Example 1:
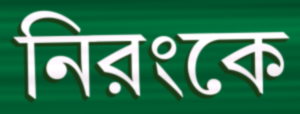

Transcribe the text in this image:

নিরংকে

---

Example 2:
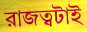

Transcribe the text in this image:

রাজত্বটাই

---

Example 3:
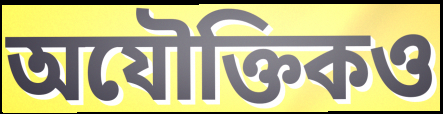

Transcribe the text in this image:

অযৌক্তিকও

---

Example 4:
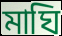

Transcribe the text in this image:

মাঘি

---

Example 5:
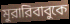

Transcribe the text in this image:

মুরারিবাবুকে